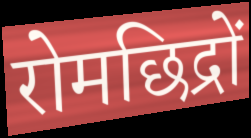
रोमछिद्रों